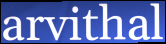
arvithal